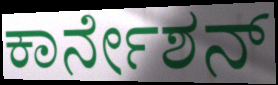
ಕಾರ್ನೇಶನ್